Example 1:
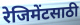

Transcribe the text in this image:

रेजिमेंटसाठी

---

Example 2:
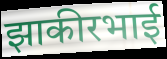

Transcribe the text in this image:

झाकीरभाई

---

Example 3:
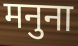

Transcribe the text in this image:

मनुना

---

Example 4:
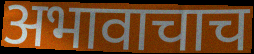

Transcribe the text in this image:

अभावाचाच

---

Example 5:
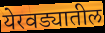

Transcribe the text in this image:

येरवड्यातील